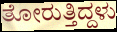
ತೋರುತ್ತಿದ್ದಳು